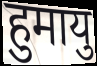
हुमायु